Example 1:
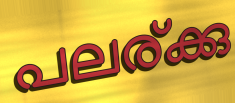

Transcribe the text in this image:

പലര്ക്കു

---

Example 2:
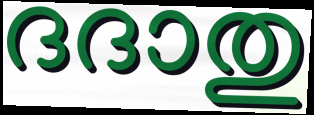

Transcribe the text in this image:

ദദാതു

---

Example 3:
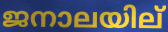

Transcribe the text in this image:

ജനാലയില്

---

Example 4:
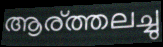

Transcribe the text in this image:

ആര്ത്തലച്ചു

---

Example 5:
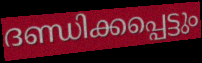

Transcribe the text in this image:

ദണ്ഡിക്കപ്പെട്ടും